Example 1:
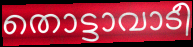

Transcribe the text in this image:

തൊട്ടാവാടീ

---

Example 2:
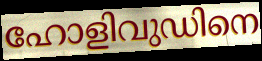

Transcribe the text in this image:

ഹോളിവുഡിനെ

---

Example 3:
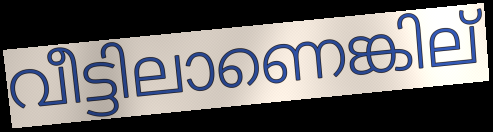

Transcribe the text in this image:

വീട്ടിലാണെങ്കില്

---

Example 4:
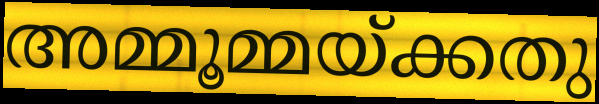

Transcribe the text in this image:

അമ്മൂമ്മയ്ക്കതു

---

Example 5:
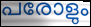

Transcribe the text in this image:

പരോളും